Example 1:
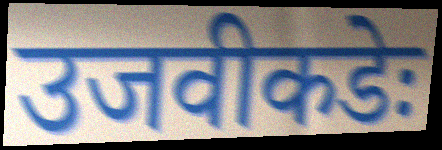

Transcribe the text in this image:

उजवीकडेः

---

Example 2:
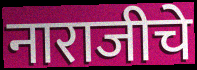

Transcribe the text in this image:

नाराजीचे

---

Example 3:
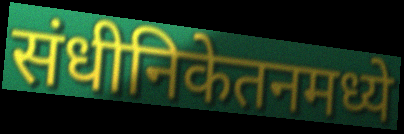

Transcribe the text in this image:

संधीनिकेतनमध्ये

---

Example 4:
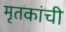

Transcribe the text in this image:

मृतकांची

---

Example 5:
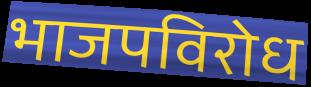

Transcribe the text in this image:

भाजपविरोध